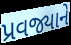
પ્રવજ્યાને